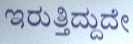
ಇರುತ್ತಿದ್ದುದೇ